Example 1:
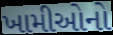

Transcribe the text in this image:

ખામીઓનો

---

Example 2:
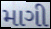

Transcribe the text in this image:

માગી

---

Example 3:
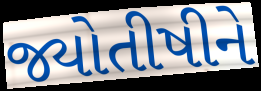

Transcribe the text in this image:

જ્યોતીષીને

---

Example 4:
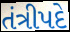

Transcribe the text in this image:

તંત્રીપદે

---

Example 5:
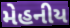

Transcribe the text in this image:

મેહનીય